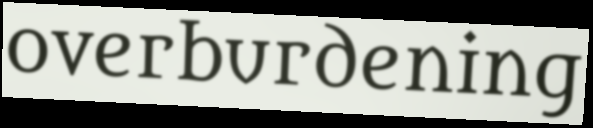
overburdening